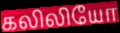
கலிலியோ